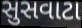
સુસવાટા